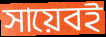
সায়েবই